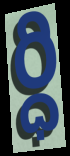
ర్ధి